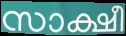
സാക്ഷീ